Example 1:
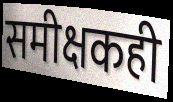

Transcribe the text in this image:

समीक्षकही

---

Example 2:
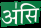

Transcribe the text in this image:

अ॑सि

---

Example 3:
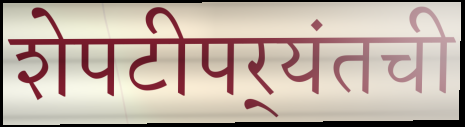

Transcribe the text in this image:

शेपटीपर्यंतची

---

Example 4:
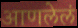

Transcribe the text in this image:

आणलेलं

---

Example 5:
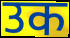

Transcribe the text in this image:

उक